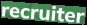
recruiter